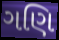
ગણિ